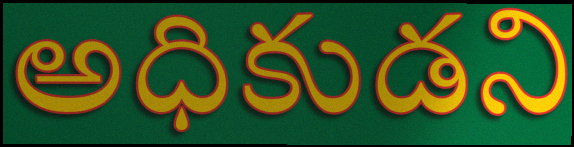
అధికుడని